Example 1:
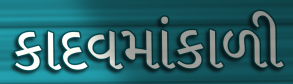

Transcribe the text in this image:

કાદવમાંકાળી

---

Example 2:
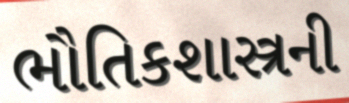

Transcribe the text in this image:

ભૌતિકશાસ્ત્રની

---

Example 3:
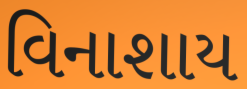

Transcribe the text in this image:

વિનાશાય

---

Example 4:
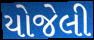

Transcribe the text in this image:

યોજેલી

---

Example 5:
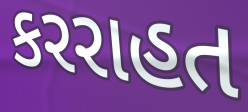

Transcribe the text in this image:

કરરાહત